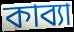
কাব্যা